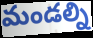
మండల్ని